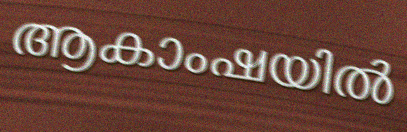
ആകാംഷയിൽ